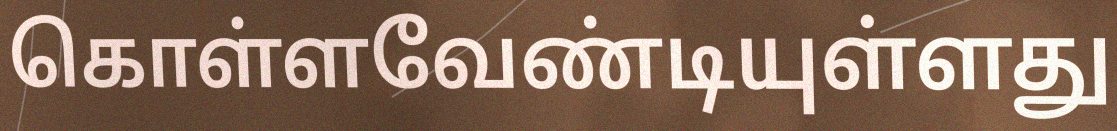
கொள்ளவேண்டியுள்ளது